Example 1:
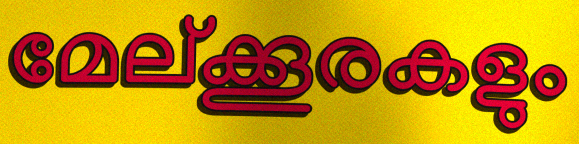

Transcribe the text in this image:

മേല്ക്കൂരകളും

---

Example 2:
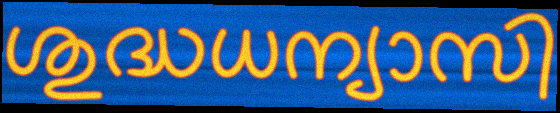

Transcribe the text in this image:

ശുദ്ധധന്യാസി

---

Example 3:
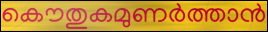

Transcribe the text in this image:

കൌതുകമുണർത്താൻ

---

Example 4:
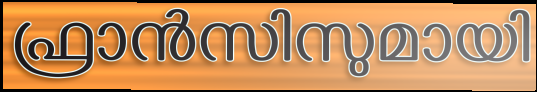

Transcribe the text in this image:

ഫ്രാൻസിസുമായി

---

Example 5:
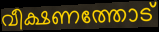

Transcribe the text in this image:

വീക്ഷണത്തോട്